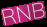
RNB